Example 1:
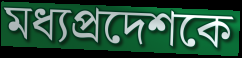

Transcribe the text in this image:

মধ্যপ্রদেশকে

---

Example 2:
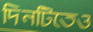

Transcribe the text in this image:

দিনটিতেও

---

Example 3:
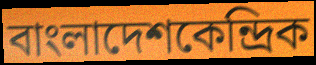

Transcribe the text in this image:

বাংলাদেশকেন্দ্রিক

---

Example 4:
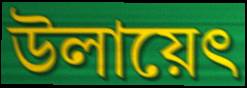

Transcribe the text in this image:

উলায়েৎ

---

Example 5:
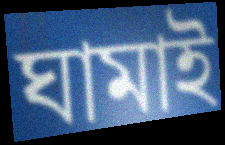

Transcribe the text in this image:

ঘামাই